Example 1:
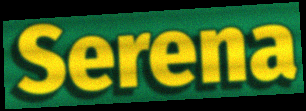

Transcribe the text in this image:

Serena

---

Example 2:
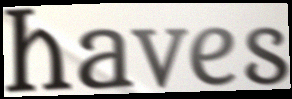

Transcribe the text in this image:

haves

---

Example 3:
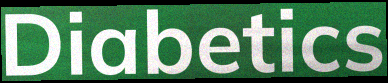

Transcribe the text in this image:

Diabetics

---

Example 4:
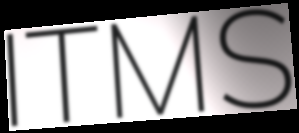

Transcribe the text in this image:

ITMS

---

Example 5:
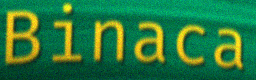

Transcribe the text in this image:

Binaca